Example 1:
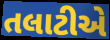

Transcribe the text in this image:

તલાટીએ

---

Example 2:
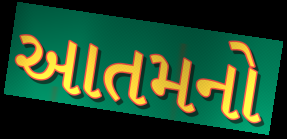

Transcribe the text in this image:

આતમનો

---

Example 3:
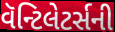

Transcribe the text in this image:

વૅન્ટિલેટર્સની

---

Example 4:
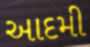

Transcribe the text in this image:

આદમી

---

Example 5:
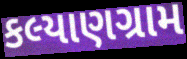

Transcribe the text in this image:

કલ્યાણગ્રામ